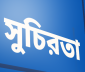
সুচিরতা